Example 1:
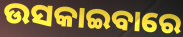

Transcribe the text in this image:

ଉସକାଇବାରେ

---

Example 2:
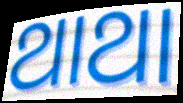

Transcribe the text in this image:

ଥାଥା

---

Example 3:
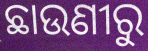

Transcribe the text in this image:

ଛାଉଣୀରୁ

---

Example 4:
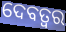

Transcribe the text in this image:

ଦେବତ୍ଵର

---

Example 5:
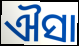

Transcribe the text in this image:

ଐସା